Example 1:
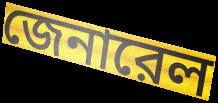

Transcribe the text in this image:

জেনারেল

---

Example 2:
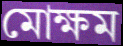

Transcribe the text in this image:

মোক্ষম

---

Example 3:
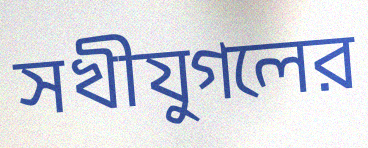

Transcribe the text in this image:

সখীযুগলের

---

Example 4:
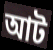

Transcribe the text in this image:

আট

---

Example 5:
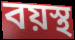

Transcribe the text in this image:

বয়স্থ